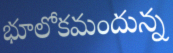
భూలోకమందున్న